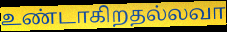
உண்டாகிறதல்லவா